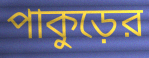
পাকুড়ের